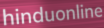
hinduonline